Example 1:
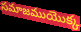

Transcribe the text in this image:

సమాజముయొక్క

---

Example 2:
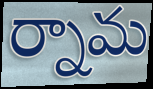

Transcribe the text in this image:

ర్నామ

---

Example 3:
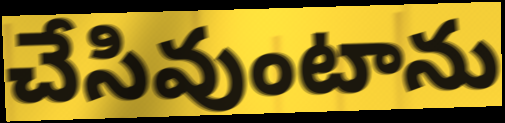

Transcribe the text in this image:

చేసివుంటాను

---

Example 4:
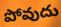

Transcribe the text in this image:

పోవుదు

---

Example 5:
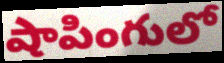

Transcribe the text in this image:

షాపింగులో